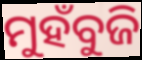
ମୁହଁବୁଜି